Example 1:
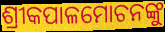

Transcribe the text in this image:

ଶ୍ରୀକପାଳମୋଚନଙ୍କୁ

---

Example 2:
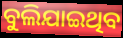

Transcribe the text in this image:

ବୁଲିଯାଇଥିବ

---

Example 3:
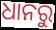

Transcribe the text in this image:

ଧାନରୁ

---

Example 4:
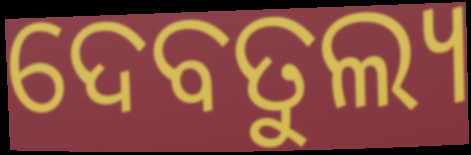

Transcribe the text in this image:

ଦେବତୁଲ୍ୟ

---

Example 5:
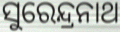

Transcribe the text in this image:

ସୁରେନ୍ଦ୍ରନାଥ